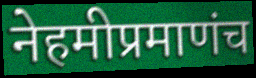
नेहमीप्रमाणंच